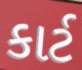
કાર્ટ